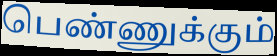
பெண்ணுக்கும்